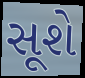
સૂશે